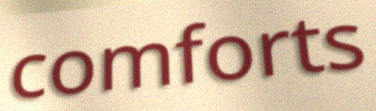
comforts